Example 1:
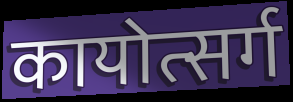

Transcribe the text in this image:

कायोत्सर्ग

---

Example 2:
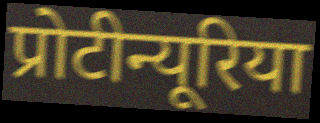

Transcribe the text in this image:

प्रोटीन्यूरिया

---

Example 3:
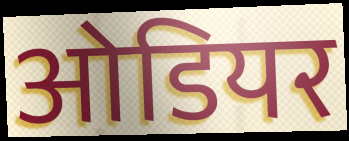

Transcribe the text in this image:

ओडियर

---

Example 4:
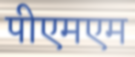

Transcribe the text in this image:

पीएमएम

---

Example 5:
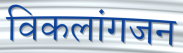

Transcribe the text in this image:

विकलांगजन